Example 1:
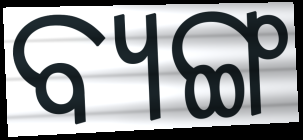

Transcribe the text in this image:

ବ୍ୟଙ୍ଗ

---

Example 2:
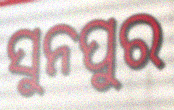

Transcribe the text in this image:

ସୁନପୁର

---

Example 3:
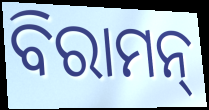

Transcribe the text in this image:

ବିରାମନ୍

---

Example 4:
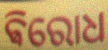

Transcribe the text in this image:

ଵିରୋଧ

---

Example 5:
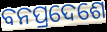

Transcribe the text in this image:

ବନପ୍ରଦେଶେ